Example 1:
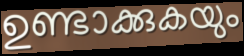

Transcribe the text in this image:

ഉണ്ടാക്കുകയും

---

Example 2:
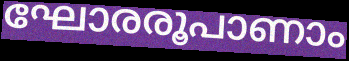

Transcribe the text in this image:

ഘോരരൂപാണാം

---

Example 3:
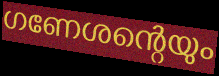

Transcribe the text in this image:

ഗണേശന്റെയും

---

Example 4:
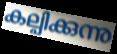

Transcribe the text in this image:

കല്പിക്കുന്നു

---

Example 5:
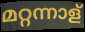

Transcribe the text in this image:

മറ്റന്നാള്